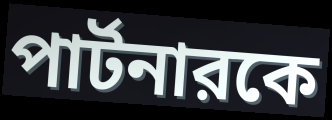
পার্টনারকে